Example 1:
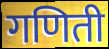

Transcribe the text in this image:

गणिती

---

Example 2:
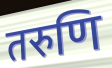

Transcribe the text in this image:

तरुणि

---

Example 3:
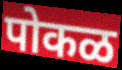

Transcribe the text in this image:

पोकळ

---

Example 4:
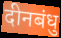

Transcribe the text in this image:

दीनबंधु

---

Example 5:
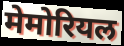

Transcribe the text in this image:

मेमोरियल